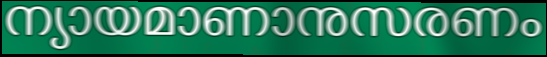
ന്യായമാണാനുസരണം